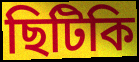
ছিটিকি